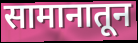
सामानातून